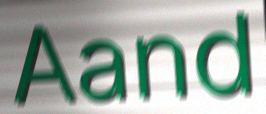
Aand